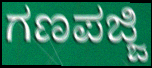
ಗಣಪಜ್ಜಿ